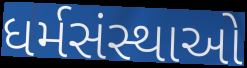
ધર્મસંસ્થાઓ